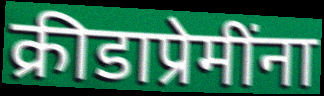
क्रीडाप्रेमींना